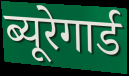
ब्यूरेगार्ड